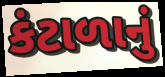
કંટાળાનું